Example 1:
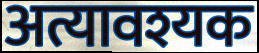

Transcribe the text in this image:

अत्यावश्यक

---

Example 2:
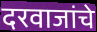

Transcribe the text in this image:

दरवाजांचे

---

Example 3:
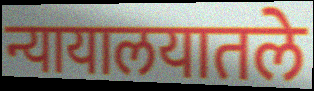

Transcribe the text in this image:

न्यायालयातले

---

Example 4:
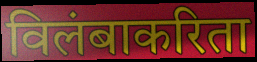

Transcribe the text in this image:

विलंबाकरिता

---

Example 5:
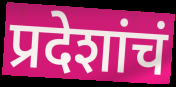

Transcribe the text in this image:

प्रदेशांचं